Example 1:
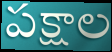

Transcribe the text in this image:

పక్షాల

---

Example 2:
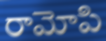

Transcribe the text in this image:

రామోపి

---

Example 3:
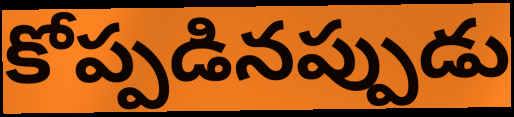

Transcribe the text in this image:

కోప్పడినప్పుడు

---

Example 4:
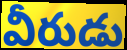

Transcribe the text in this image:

వీరుడు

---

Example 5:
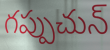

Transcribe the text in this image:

గప్పుచున్